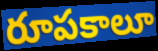
రూపకాలూ